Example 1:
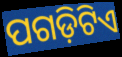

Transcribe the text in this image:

ପଗଡ଼ିଟିଏ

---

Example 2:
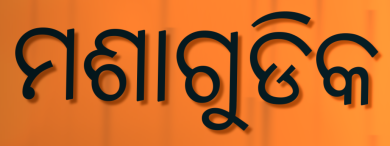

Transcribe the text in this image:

ମଶାଗୁଡିକ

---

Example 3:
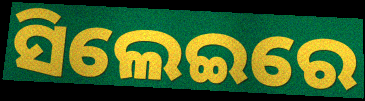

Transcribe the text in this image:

ସିଲେଇରେ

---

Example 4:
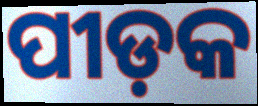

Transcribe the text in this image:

ପୀଡ଼କ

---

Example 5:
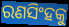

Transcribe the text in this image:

ରଣସିଂହକୁ